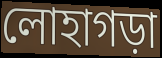
লোহাগড়া